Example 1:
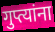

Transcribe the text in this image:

गुप्त्यांना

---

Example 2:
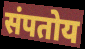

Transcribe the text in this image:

संपतोय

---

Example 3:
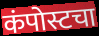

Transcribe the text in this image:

कंपोस्टचा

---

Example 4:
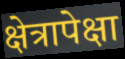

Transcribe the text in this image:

क्षेत्रापेक्षा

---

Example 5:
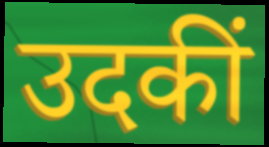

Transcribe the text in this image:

उदकीं